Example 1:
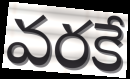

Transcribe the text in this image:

వరకే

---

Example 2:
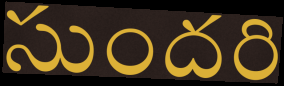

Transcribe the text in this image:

సుందరి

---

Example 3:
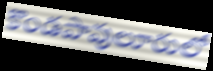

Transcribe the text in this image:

కొండపావులూరులో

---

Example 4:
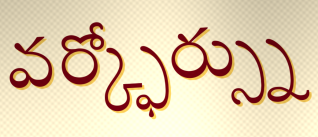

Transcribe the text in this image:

వర్క్ఫోర్స్ను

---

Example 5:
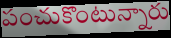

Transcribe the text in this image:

పంచుకొంటున్నారు